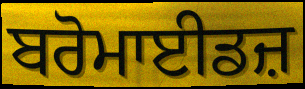
ਬਰੋਮਾਈਡਜ਼